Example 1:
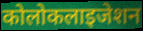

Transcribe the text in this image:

कोलोकलाइजेशन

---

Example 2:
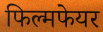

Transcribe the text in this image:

फिल्मफेयर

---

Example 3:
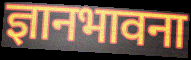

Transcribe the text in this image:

ज्ञानभावना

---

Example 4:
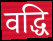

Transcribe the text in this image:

वद्धि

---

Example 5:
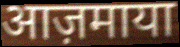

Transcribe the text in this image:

आज़माया